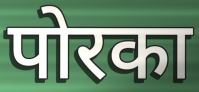
पोरका